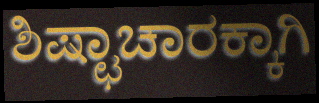
ಶಿಷ್ಟಾಚಾರಕ್ಕಾಗಿ